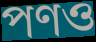
পণও